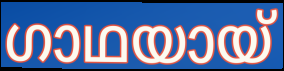
ഗാഥയായ്